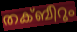
തക്ബീറും